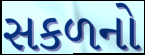
સકળનો